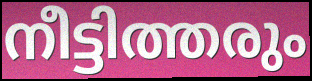
നീട്ടിത്തരും